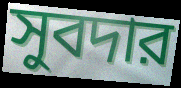
সুবদার